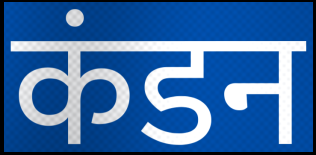
कंडन